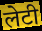
लेटी